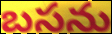
బసను